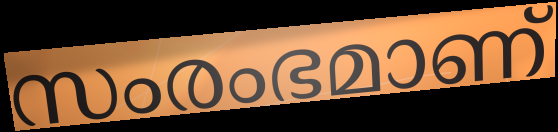
സംരംഭമാണ്